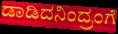
ಡಾಡಿದನಿಂದ್ರಂಗೆ